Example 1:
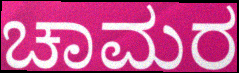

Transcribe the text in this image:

ಚಾಮರ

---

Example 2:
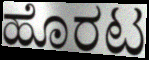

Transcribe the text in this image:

ಹೊರಟ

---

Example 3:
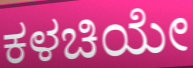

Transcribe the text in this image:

ಕಳಚಿಯೇ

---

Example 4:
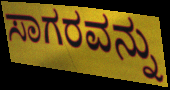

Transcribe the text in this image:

ಸಾಗರವನ್ನು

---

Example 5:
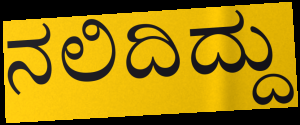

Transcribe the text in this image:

ನಲಿದಿದ್ದು